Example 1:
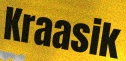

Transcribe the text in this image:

Kraasik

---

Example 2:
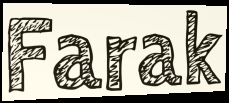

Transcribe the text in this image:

Farak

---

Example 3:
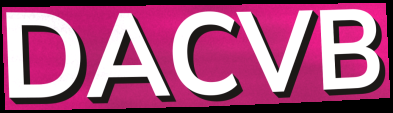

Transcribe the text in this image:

DACVB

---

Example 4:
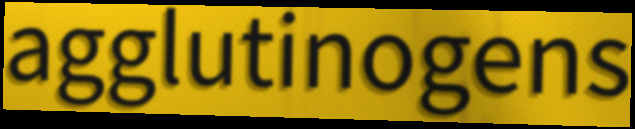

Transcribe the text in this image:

agglutinogens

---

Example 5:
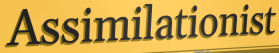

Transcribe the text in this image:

Assimilationist